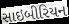
સાઇબીરિયન